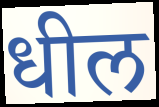
धील